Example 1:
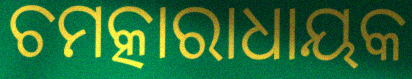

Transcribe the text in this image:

ଚମତ୍କାରାଧାୟକ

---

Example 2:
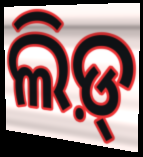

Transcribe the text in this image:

ଲିଡ଼୍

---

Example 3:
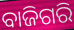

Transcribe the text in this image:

ବାଜିଗରି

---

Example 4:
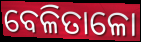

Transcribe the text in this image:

ବେଳିତାଳୋ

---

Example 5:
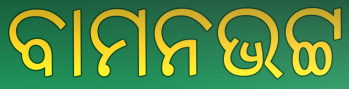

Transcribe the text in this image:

ବାମନଭଟ୍ଟ